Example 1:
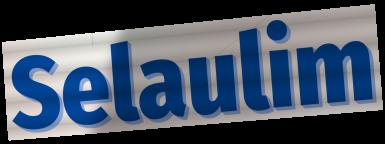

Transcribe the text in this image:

Selaulim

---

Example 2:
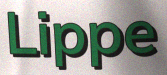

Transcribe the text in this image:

Lippe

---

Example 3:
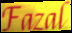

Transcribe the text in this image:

Fazal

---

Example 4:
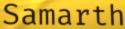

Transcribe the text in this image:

Samarth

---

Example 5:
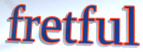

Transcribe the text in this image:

fretful